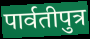
पार्वतीपुत्र